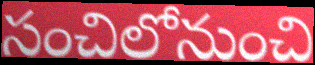
సంచిలోనుంచి